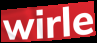
wirle